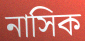
নাসিক